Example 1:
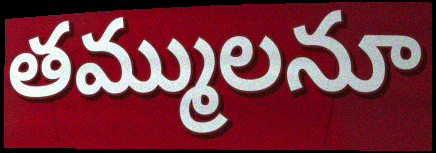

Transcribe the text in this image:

తమ్ములనూ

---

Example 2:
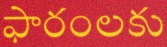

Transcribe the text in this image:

ఫారంలకు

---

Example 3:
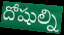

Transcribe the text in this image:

దోషుల్ని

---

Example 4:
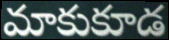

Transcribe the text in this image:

మాకుకూడ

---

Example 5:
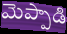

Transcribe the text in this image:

మెప్పాడి